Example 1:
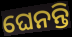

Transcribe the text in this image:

ଘେନନ୍ତି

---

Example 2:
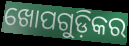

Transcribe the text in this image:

ଖୋପଗୁଡ଼ିକର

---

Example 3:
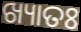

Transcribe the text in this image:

ଖ୍ୟାତଃ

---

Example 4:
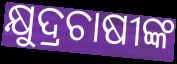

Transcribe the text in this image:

କ୍ଷୁଦ୍ରଚାଷୀଙ୍କ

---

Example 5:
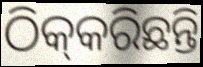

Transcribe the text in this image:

ଠିକ୍‌କରିଛନ୍ତି